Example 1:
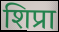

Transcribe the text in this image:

शिप्रा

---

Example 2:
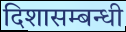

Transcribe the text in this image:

दिशासम्बन्धी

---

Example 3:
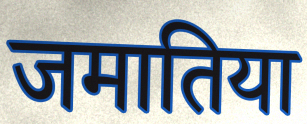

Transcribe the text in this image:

जमातिया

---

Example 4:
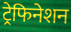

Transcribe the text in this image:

ट्रेफिनेशन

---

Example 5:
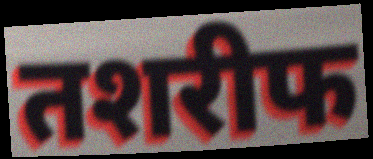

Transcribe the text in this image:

तशरीफ